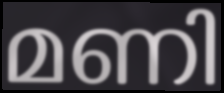
മണി